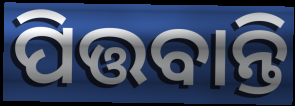
ପିତ୍ତବାନ୍ତି